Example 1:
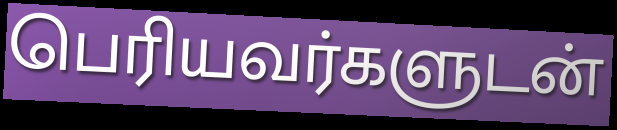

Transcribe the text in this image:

பெரியவர்களுடன்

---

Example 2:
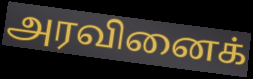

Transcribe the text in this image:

அரவினைக்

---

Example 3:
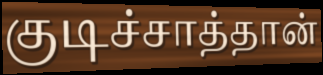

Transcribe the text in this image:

குடிச்சாத்தான்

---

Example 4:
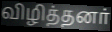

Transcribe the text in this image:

விழித்தனர்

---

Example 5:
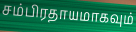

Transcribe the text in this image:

சம்பிரதாயமாகவும்